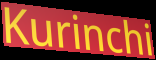
Kurinchi